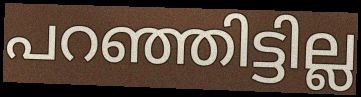
പറഞ്ഞിട്ടില്ല